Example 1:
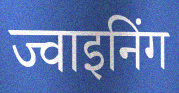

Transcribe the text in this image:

ज्वाइनिंग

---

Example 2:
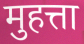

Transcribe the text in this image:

मुहत्ता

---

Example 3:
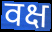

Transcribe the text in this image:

वक्ष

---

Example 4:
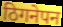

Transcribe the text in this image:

ठिगनेपन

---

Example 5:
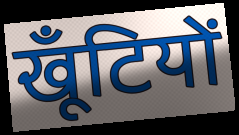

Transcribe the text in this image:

खूँटियों